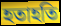
হতাহতি